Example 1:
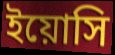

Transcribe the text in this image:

ইয়োসি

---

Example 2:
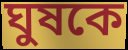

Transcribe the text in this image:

ঘুষকে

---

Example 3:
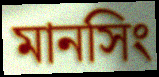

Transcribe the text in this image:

মানসিং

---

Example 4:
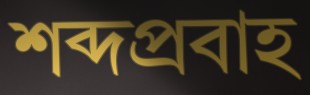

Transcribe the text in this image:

শব্দপ্রবাহ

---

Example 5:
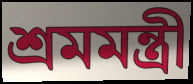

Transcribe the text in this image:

শ্রমমন্ত্রী